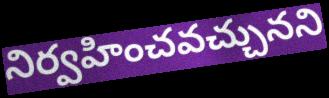
నిర్వహించవచ్చునని